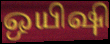
ஒயிஷி